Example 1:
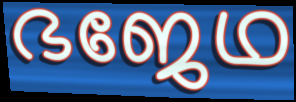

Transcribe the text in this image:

ഭജേഥ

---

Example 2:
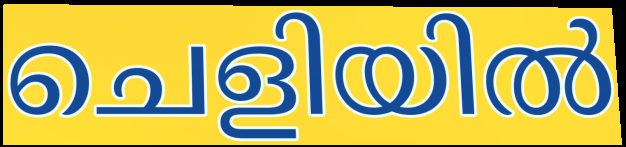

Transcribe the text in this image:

ചെളിയിൽ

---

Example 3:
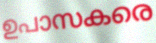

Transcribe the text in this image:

ഉപാസകരെ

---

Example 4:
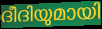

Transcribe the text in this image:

ദീദിയുമായി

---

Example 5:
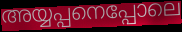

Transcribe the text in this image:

അയ്യപ്പനെപ്പോലെ